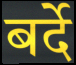
बर्दे